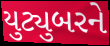
યુટ્યુબરને